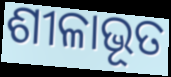
ଶୀଳାଭୂତ